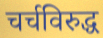
चर्चविरुद्ध